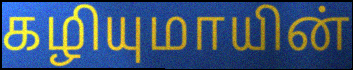
கழியுமாயின்